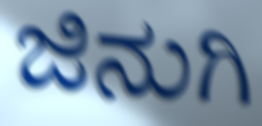
ಜಿನುಗಿ